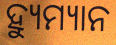
ହ୍ୟୁମ୍ୟାନ